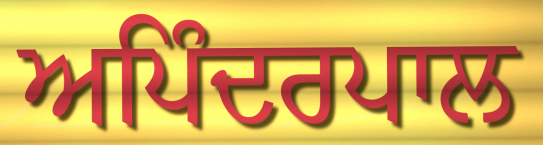
ਅਪਿੰਦਰਪਾਲ